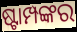
ଷ୍ଟାମ୍ପଙ୍କର